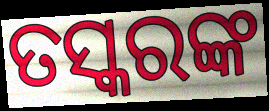
ତସ୍କରଙ୍କ